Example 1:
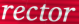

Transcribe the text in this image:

rector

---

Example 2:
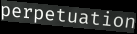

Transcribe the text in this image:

perpetuation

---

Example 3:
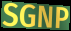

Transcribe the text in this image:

SGNP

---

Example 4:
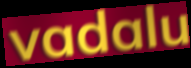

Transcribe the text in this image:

vadalu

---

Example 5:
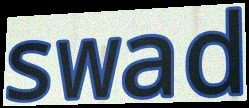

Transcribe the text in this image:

swad